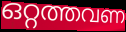
ഒറ്റത്തവണ